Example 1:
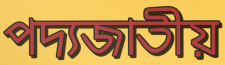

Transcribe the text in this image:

পদ্যজাতীয়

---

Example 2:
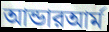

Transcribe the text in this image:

আন্ডারআর্ম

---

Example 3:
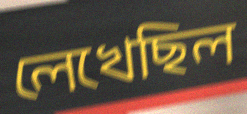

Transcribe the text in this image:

লেখেছিল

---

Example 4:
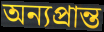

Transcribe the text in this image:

অন্যপ্রান্ত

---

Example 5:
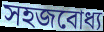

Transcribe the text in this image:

সহজবোধ্য